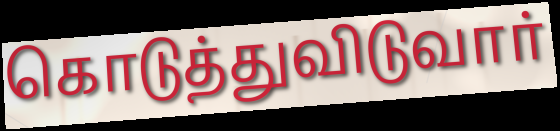
கொடுத்துவிடுவார்